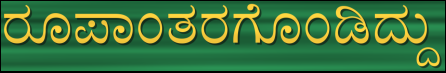
ರೂಪಾಂತರಗೊಂಡಿದ್ದು